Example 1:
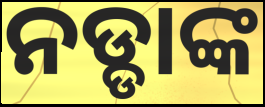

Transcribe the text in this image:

ନଡ୍ଡାଙ୍କ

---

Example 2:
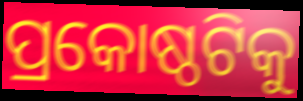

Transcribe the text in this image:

ପ୍ରକୋଷ୍ଠଟିକୁ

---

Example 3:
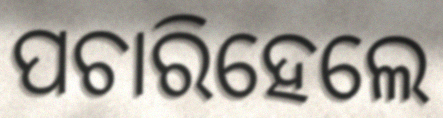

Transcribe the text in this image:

ପଚାରିହେଲେ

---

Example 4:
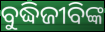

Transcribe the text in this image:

ବୁଦ୍ଧିଜୀବିଙ୍କ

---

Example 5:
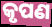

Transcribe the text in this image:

କୃପଣ